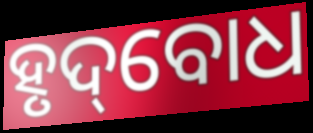
ହୃଦ୍‌ବୋଧ